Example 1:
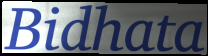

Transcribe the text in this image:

Bidhata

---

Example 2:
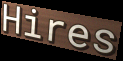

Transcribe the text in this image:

Hires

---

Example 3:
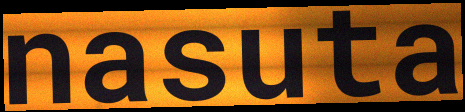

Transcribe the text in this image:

nasuta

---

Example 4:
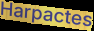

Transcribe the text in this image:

Harpactes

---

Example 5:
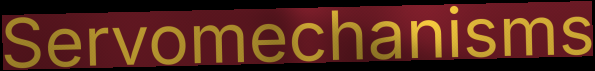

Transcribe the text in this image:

Servomechanisms